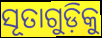
ସୂତାଗୁଡ଼ିକୁ